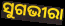
ସୁଗଭୀରା